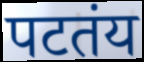
पटतंय